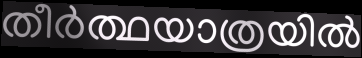
തീർത്ഥയാത്രയിൽ